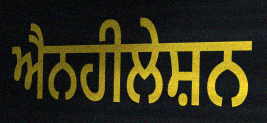
ਐਨਹੀਲੇਸ਼ਨ